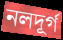
নলদূর্গ